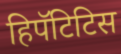
हिपॅटिटिस